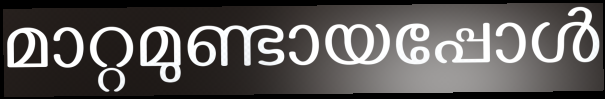
മാറ്റമുണ്ടായപ്പോൾ